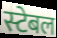
स्‍टेबल